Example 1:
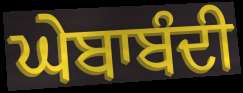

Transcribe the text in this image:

ਘੇਬਾਬੰਦੀ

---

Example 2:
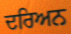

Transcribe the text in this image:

ਦਰਿਅਨ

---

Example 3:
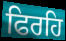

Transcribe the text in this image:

ਫਿਰਹਿ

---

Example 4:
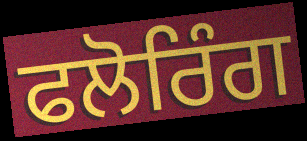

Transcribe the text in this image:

ਫਲੋਰਿੰਗ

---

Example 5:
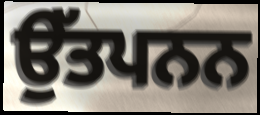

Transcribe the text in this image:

ਉੱਤਪਨਨ